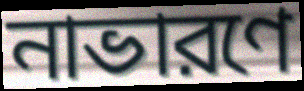
নাভারণে